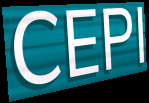
CEPI